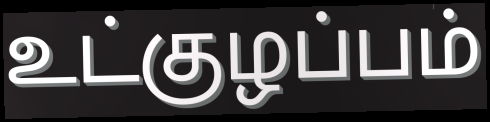
உட்குழப்பம்